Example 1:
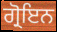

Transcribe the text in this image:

ਗ੍ਰੋਇਨ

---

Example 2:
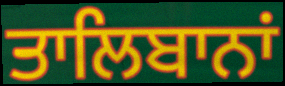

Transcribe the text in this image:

ਤਾਲਿਬਾਨਾਂ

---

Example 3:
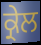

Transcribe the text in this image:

ਕ੍ਰੇਲ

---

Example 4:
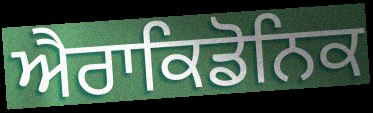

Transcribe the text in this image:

ਐਰਾਕਿਡੋਨਿਕ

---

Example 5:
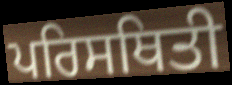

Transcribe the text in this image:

ਪਰਿਸਥਿਤੀ